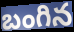
బంగిన